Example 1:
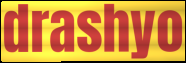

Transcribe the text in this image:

drashyo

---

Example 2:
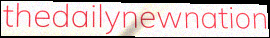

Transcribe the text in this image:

thedailynewnation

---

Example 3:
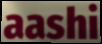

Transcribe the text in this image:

aashi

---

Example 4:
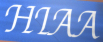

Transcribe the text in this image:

HIAA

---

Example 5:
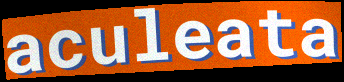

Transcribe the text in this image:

aculeata